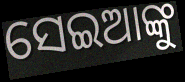
ସେଇଆଙ୍କୁ